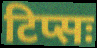
टिप्सः